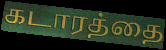
கடாரத்தை